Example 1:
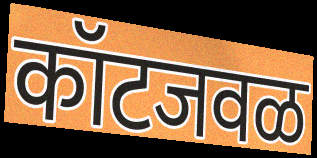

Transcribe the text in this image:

कॉटजवळ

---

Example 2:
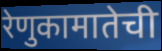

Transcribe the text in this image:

रेणुकामातेची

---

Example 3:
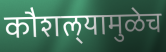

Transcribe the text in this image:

कौशल्यामुळेच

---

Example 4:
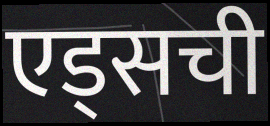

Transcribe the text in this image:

एड्सची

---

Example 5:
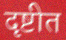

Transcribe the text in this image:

दृष्टीत